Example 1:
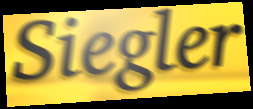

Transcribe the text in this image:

Siegler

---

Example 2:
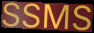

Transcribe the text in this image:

SSMS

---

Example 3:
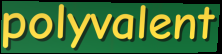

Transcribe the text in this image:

polyvalent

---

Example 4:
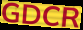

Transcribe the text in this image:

GDCR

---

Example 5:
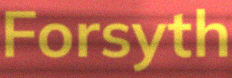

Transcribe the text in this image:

Forsyth